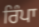
ਰਿੰਪਾ